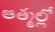
ఆత్మల్లో